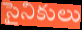
సైనికులు